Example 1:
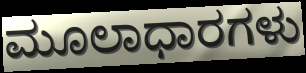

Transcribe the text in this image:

ಮೂಲಾಧಾರಗಳು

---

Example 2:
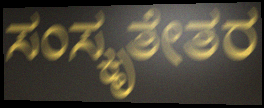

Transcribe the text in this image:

ಸಂಸ್ಕೃತೇತರ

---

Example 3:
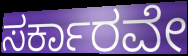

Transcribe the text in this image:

ಸರ್ಕಾರವೇ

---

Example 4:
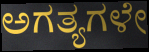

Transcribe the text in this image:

ಅಗತ್ಯಗಳೇ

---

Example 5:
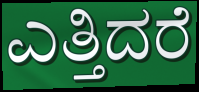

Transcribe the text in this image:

ಎತ್ತಿದರೆ